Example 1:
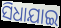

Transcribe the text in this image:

ସିଧାଯାଇ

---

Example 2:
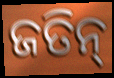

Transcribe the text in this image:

ଜତିନ୍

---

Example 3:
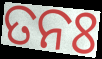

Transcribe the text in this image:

ତନଃ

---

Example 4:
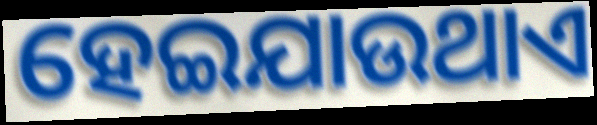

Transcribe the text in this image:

ହେଇଯାଉଥାଏ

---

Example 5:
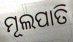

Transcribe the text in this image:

ମୂଲପାତି